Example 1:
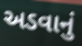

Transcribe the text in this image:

અડવાનું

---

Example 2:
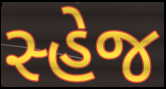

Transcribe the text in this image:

સ્હેજ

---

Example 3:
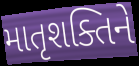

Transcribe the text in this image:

માતૃશક્તિને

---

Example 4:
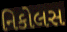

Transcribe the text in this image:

નિકોલસ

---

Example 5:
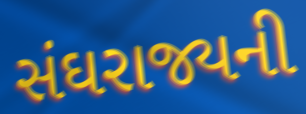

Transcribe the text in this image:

સંઘરાજ્યની